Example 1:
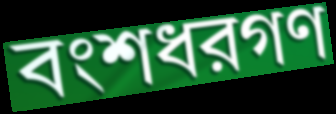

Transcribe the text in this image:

বংশধরগণ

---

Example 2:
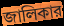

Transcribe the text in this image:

জালিকার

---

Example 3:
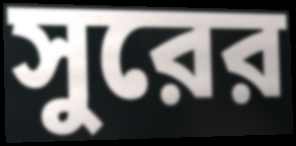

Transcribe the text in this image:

সুরের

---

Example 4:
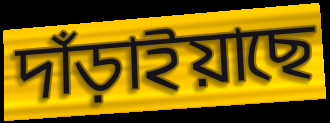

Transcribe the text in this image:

দাঁড়াইয়াছে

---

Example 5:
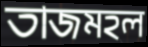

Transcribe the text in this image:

তাজমহল